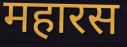
महारस